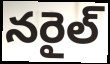
నరైల్